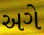
અગે